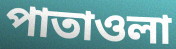
পাতাওলা